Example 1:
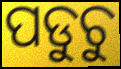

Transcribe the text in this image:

ପଡୁଚୁ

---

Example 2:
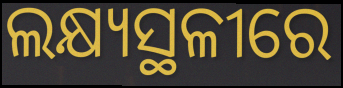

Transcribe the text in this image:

ଲକ୍ଷ୍ୟସ୍ଥଳୀରେ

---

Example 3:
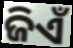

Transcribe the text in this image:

ଜିଏଁ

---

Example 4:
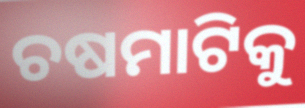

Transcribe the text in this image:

ଚଷମାଟିକୁ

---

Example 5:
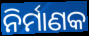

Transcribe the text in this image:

ନିର୍ମାଣକ